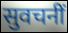
सुवचनीं